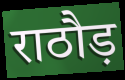
राठौड़